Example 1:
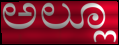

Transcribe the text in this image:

ಅಲ್ಲೂ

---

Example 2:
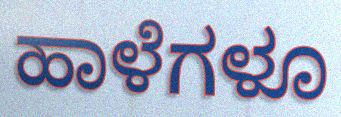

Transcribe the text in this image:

ಹಾಳೆಗಳೂ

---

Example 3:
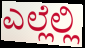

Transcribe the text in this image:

ಎಲ್ಲೆಲ್ಲಿ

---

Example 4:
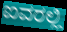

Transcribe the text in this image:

ಐವರಲ್ಲಿ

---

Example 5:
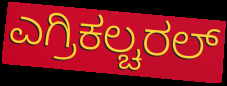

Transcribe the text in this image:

ಎಗ್ರಿಕಲ್ಚರಲ್